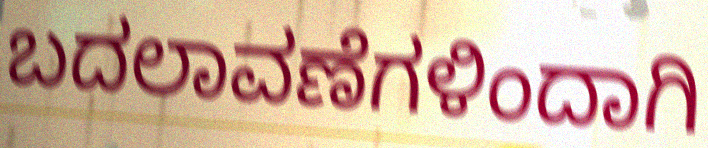
ಬದಲಾವಣೆಗಳಿಂದಾಗಿ